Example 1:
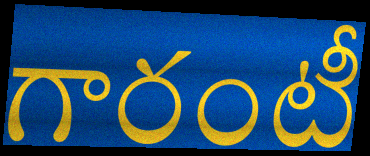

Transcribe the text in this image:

గారంటీ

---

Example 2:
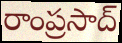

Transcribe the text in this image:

రాంప్రసాద్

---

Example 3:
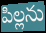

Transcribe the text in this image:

పిల్లను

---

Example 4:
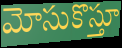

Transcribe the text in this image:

మోసుకొస్తూ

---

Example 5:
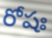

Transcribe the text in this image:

రోషః